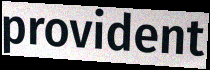
provident